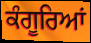
ਕੰਗੂਰਿਆਂ